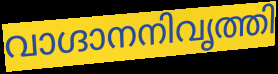
വാഗ്ദാനനിവൃത്തി